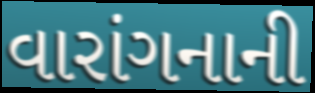
વારાંગનાની